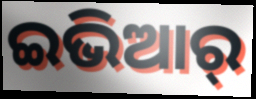
ଇଭିଆର୍